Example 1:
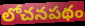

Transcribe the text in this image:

లోచనపథం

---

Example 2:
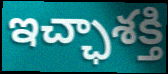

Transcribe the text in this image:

ఇచ్ఛాశక్తి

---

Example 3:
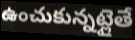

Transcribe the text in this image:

ఉంచుకున్నట్లైతే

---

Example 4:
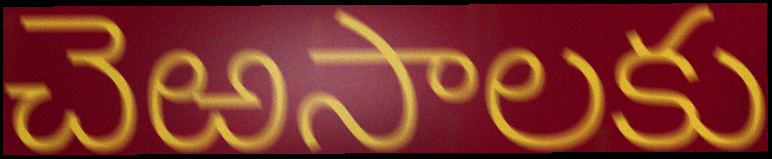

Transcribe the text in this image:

చెఱసాలకు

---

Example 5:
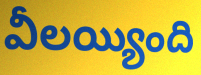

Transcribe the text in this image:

వీలయ్యింది